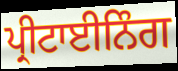
ਪ੍ਰੀਟਾਈਨਿੰਗ